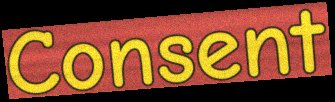
Consent